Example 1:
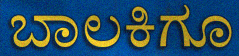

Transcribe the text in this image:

ಬಾಲಕಿಗೂ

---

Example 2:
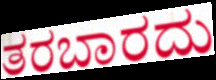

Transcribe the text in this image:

ತರಬಾರದು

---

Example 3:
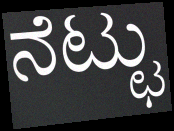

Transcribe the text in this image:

ನೆಟ್ಟು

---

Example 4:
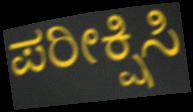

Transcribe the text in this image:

ಪರೀಕ್ಷಿಸಿ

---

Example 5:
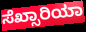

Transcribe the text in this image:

ಸೆಖ್ಸಾರಿಯಾ